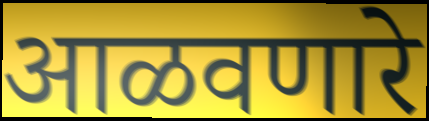
आळवणारे